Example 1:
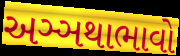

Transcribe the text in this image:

અઞ્ઞથાભાવો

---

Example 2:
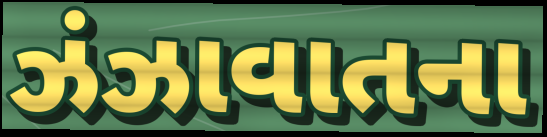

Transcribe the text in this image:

ઝંઝાવાતના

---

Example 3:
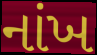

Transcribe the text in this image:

નાંખ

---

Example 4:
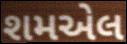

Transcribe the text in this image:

શમએલ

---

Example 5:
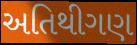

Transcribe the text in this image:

અતિથીગણ